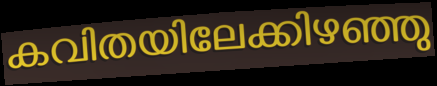
കവിതയിലേക്കിഴഞ്ഞു